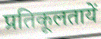
प्रतिकूलतायें